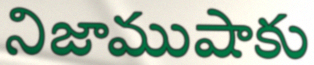
నిజాముషాకు